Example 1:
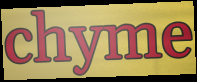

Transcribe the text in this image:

chyme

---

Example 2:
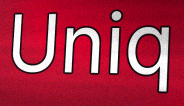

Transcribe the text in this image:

Uniq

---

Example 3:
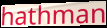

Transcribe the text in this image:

hathman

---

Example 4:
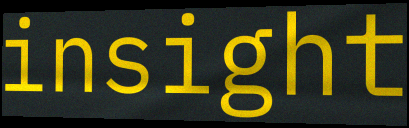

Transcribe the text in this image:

insight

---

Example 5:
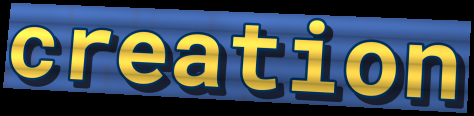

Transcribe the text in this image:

creation